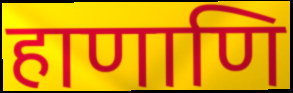
हाणाणि